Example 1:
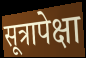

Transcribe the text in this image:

सूत्रापेक्षा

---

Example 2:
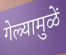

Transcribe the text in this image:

गेल्यामुळें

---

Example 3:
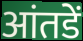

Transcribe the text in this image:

आंतडें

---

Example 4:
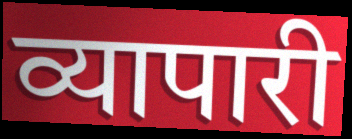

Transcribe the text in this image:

व्‍यापारी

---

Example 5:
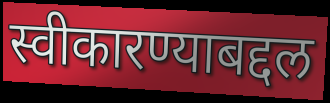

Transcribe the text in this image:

स्वीकारण्याबद्दल